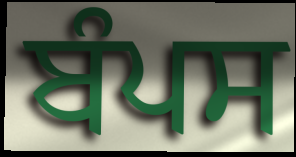
ਬੰਪਸ